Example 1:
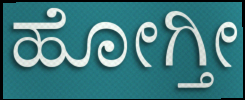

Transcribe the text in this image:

ಹೋಗ್ತೀ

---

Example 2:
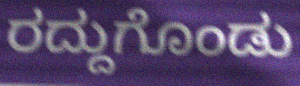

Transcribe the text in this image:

ರದ್ದುಗೊಂಡು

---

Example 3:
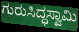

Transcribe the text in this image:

ಗುರುಸಿದ್ಧಸ್ವಾಮಿ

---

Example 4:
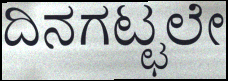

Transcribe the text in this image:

ದಿನಗಟ್ಟಲೇ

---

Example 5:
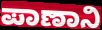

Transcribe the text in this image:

ಪಾಣಾನಿ